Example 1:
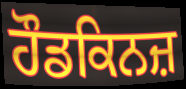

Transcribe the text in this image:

ਹੌਡਕਿਨਜ਼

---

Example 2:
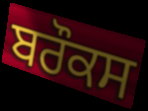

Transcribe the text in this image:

ਬਰੌਕਸ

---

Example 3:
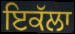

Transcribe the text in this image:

ਇਕੱਲਾ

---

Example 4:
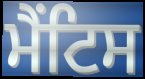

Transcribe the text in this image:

ਮੈਂਟਿਸ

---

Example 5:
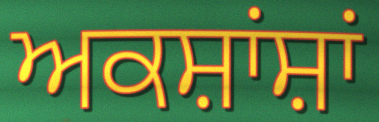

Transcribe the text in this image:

ਅਕਸ਼ਾਂਸ਼ਾਂ